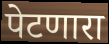
पेटणारा